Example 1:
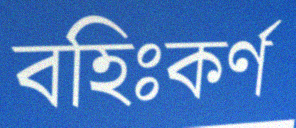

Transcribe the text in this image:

বহিঃকর্ণ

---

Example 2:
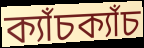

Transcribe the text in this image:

ক্যাঁচক্যাঁচ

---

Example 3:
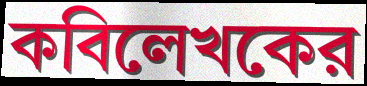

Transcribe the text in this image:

কবিলেখকের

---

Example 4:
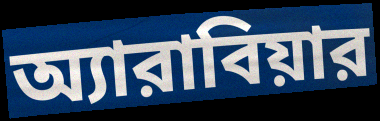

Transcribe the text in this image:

অ্যারাবিয়ার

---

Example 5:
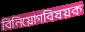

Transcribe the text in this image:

বিনিয়োগবিষয়ক